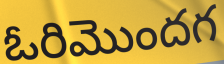
ఓరిమొందగ